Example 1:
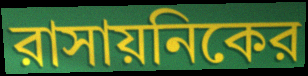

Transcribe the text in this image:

রাসায়নিকের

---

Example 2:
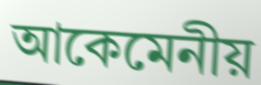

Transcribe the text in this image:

আকেমেনীয়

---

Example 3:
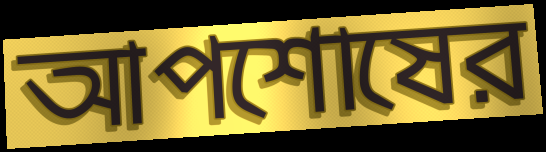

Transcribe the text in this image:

আপশোষের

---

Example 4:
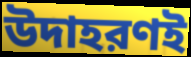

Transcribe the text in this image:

উদাহরণই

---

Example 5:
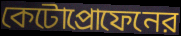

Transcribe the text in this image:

কেটোপ্রোফেনের